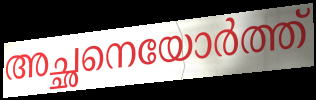
അച്ഛനെയോർത്ത്